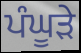
ਪੰਘੂੜੇ